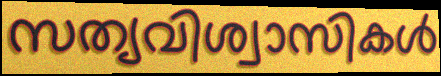
സത്യവിശ്വാസികൾ